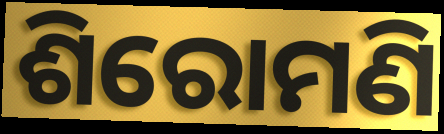
ଶିରୋମଣି